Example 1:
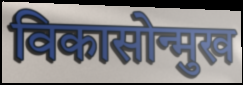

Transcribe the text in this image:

विकासोन्मुख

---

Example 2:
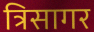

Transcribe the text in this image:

त्रिसागर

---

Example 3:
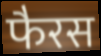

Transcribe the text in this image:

फैरस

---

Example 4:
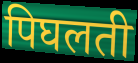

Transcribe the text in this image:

पिघलती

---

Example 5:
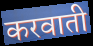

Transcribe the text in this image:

करवाती